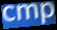
cmp